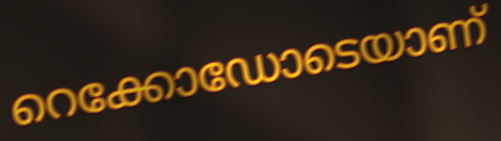
റെക്കോഡോടെയാണ്